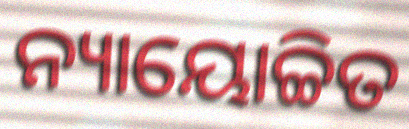
ନ୍ୟାୟୋଚ୍ଚିତ